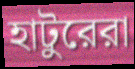
হাটুরেরা